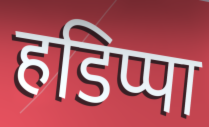
हडिप्पा